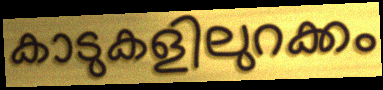
കാടുകളിലുറക്കം